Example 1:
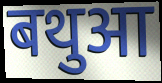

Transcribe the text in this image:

बथुआ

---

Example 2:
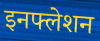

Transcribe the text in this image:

इनफ्लेशन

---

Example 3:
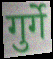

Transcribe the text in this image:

गुर्गे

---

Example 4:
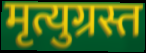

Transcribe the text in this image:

मृत्युग्रस्त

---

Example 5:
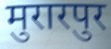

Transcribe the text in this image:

मुरारपुर